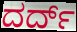
ದರ್ದ್